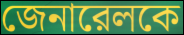
জেনারেলকে